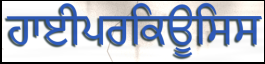
ਹਾਈਪਰਕਿਊਸਿਸ